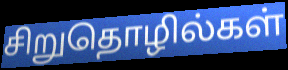
சிறுதொழில்கள்